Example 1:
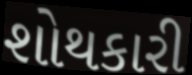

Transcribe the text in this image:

શોથકારી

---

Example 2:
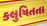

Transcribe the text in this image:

કલુષિતતા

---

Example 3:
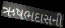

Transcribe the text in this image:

ઋષભદાસની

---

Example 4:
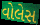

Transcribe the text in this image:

વોલેસ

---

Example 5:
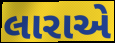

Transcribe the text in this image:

લારાએ